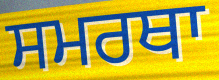
ਸਮਰਥਾ